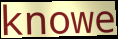
knowe